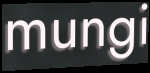
mungi